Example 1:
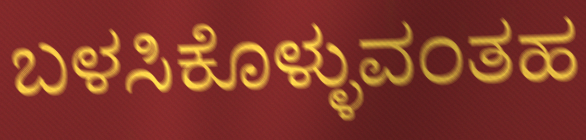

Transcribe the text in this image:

ಬಳಸಿಕೊಳ್ಳುವಂತಹ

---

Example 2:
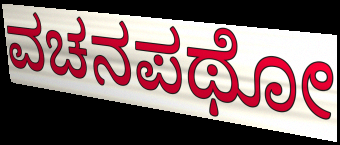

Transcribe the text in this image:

ವಚನಪಥೋ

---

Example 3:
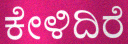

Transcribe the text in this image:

ಕೇಳಿದಿರೆ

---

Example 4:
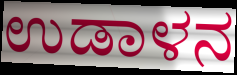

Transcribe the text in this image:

ಉಡಾಳನ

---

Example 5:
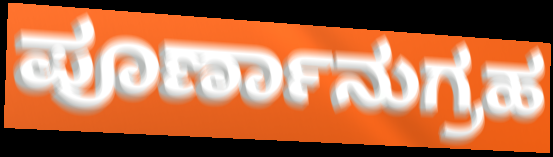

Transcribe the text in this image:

ಪೂರ್ಣಾನುಗ್ರಹ